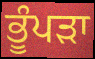
ਭੂੰਪੜਾ